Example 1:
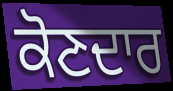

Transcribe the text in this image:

ਕੋਣਦਾਰ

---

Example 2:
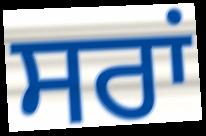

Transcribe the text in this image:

ਸਰਾਂ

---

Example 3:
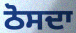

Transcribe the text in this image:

ਠੋਸਦਾ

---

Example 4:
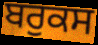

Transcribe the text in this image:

ਬਰੁਕਸ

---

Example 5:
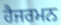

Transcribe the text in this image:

ਹੈਜਰਮਨ